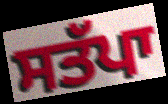
ਸਤੱਪਾ